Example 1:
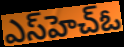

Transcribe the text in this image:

ఎస్‌హెచ్ఓ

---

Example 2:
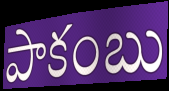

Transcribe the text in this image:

పాకంబు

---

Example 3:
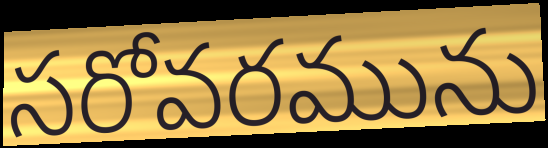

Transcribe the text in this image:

సరోవరమును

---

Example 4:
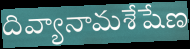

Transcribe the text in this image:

దివ్యానామశేషేణ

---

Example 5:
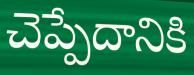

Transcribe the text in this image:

చెప్పేదానికి